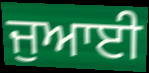
ਜੁਆਈ